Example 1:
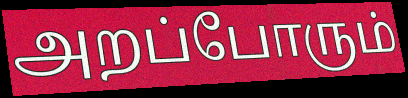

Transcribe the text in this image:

அறப்போரும்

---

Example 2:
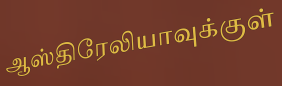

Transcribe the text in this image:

ஆஸ்திரேலியாவுக்குள்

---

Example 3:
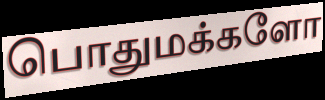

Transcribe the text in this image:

பொதுமக்களோ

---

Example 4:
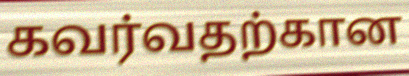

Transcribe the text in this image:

கவர்வதற்கான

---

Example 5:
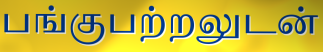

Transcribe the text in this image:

பங்குபற்றலுடன்